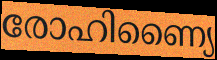
രോഹിണ്യൈ